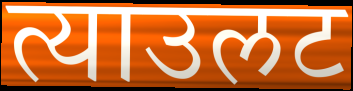
त्याउलट